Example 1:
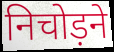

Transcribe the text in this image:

निचोड़ने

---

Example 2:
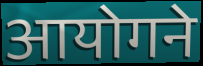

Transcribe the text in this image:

आयोगने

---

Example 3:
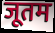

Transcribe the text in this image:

जूतम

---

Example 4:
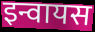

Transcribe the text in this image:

इन्वायस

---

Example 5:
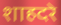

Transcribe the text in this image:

शाहदरे